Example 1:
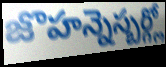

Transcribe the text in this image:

జొహన్నెస్బర్గ్లో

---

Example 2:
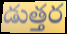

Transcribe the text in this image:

డుత్తర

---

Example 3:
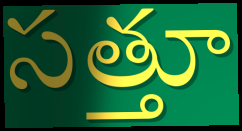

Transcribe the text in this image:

సత్తూ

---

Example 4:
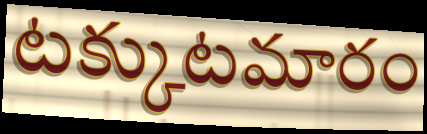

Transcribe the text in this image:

టక్కుటమారం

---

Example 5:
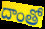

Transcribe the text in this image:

దాంతో